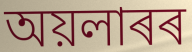
অয়লাৰৰ